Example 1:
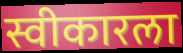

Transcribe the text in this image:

स्वीकारला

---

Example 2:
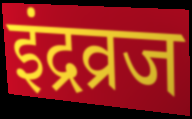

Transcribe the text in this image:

इंद्रव्रज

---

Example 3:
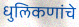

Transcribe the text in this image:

धुलिकणांचे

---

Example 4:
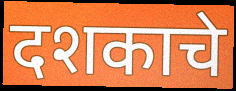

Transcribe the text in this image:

दशकाचे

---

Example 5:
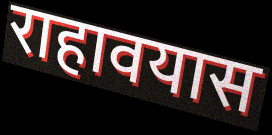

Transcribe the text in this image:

राहावयास